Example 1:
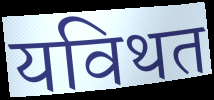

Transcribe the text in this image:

यविथत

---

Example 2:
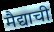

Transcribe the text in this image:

मैद्याची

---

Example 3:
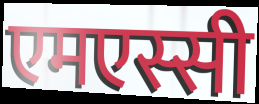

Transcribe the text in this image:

एमएस्सी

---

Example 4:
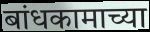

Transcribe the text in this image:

बांधकामाच्या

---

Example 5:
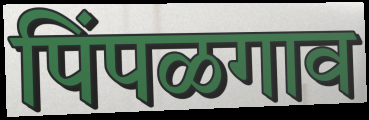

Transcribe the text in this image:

पिंपळगाव